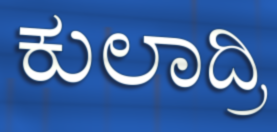
ಕುಲಾದ್ರಿ